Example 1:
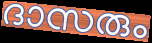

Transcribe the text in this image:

ദാസരും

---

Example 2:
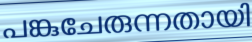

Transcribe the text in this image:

പങ്കുചേരുന്നതായി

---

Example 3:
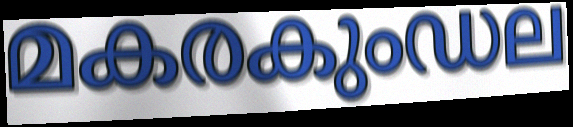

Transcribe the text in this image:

മകരകുംഡല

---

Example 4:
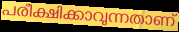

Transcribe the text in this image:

പരീക്ഷിക്കാവുന്നതാണ്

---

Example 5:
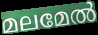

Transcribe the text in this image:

മലമേൽ